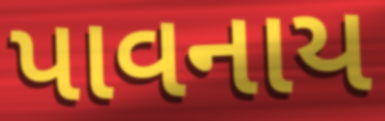
પાવનાય